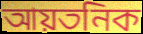
আয়তনিক